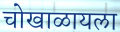
चोखाळायला